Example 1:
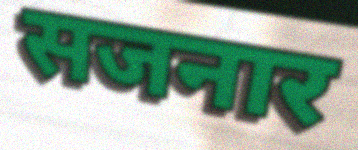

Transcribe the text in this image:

सजनार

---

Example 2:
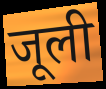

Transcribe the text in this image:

जूली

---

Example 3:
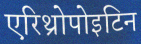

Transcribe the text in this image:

एरिथ्रोपोइटिन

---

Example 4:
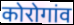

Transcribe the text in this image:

कोरोगांव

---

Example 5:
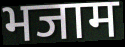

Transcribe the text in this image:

भजाम